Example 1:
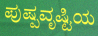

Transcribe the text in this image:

ಪುಷ್ಪವೃಷ್ಟಿಯ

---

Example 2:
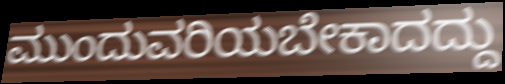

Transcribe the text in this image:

ಮುಂದುವರಿಯಬೇಕಾದದ್ದು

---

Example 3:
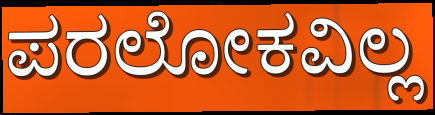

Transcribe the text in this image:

ಪರಲೋಕವಿಲ್ಲ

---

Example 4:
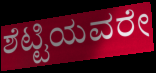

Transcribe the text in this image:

ಶೆಟ್ಟಿಯವರೇ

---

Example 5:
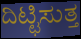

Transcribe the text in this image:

ದಿಟ್ಟಿಸುತ್ತ